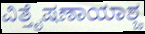
ವಿತ್ತೈಷಣಾಯಾಶ್ಚ